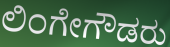
ಲಿಂಗೇಗೌಡರು